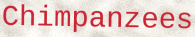
Chimpanzees